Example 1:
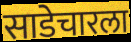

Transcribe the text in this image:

साडेचारला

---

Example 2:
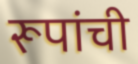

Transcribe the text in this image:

रूपांची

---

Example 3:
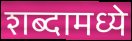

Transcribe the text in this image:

शब्दामध्ये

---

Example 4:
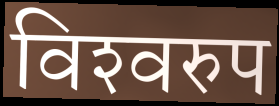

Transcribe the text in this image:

विश्वरुप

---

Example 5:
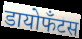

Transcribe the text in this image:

डायोफँटस